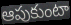
ఆపుకుంటా